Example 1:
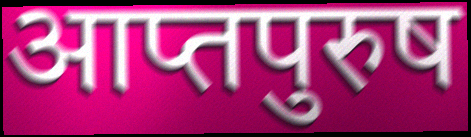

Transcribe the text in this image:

आप्तपुरुष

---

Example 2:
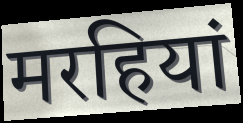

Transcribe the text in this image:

मरहियां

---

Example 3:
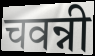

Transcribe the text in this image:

चवन्नी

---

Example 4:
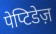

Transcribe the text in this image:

पेप्टिडेज़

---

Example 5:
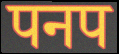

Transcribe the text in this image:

पनप